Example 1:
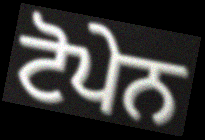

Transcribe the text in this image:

ਟੋਪੇਨ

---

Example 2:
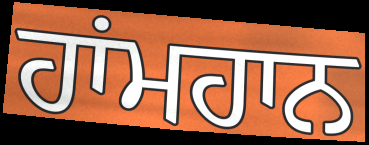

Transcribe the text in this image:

ਹਾਂਮਹਾਨ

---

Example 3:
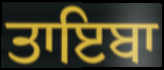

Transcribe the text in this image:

ਤਾਇਬਾ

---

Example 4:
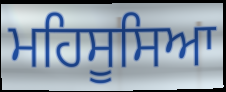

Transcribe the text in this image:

ਮਹਿਸੂਸਿਆ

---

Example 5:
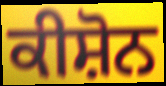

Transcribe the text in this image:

ਕੀਸ਼ੋਨ